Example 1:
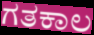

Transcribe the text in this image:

ಗತಕಾಲ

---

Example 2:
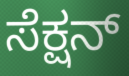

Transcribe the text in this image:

ಸೆಕ್ಷನ್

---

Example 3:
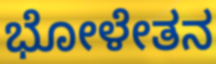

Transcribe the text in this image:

ಭೋಳೇತನ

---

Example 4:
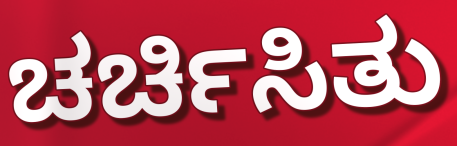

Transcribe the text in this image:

ಚರ್ಚಿಸಿತು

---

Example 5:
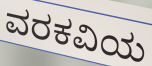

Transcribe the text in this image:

ವರಕವಿಯ